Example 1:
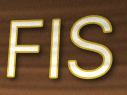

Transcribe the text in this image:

FIS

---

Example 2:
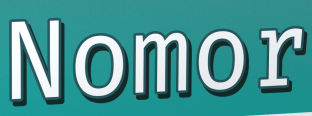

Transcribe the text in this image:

Nomor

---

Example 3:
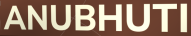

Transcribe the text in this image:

ANUBHUTI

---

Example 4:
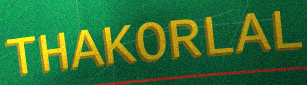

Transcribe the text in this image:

THAKORLAL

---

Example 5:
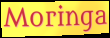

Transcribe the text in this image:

Moringa